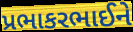
પ્રભાકરભાઈને